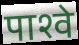
पाश्वे